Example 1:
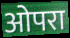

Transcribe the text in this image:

ओपरा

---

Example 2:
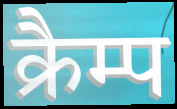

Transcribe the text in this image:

क्रैम्प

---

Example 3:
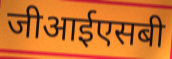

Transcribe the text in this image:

जीआईएसबी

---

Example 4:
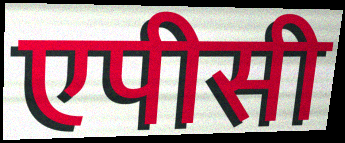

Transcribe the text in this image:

एपीसी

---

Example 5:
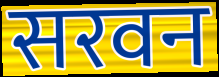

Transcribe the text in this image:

सरवन